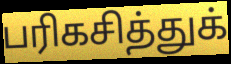
பரிகசித்துக்